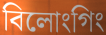
বিলোংগিং